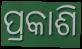
ପ୍ରକାଶି